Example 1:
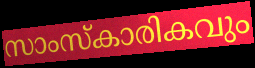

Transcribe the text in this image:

സാംസ്കാരികവും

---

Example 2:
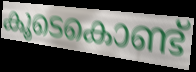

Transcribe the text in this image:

കൂടെകൊണ്ട്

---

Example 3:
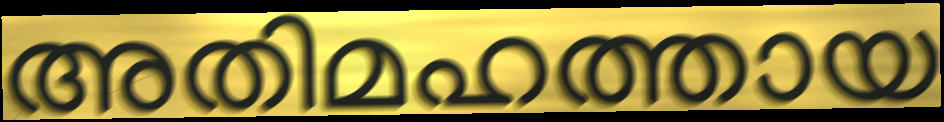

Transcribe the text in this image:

അതിമഹത്തായ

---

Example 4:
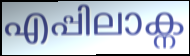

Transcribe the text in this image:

എപ്പിലാക്ന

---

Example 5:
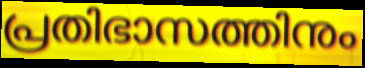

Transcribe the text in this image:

പ്രതിഭാസത്തിനും